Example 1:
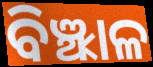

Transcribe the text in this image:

ବିଞ୍ଝାଳ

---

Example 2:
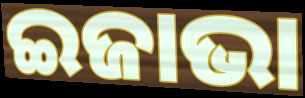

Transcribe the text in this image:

ଇଜାଭା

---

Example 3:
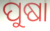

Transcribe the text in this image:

ପୁଷା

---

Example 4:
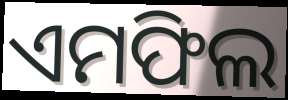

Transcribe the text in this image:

ଏମଫିଲ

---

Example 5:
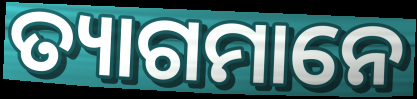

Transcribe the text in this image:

ତ୍ୟାଗମାନେ